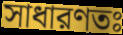
সাধারণতঃ